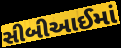
સીબીઆઈમાં